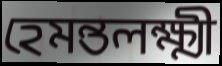
হেমন্তলক্ষ্মী